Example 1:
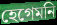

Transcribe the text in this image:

হেগেমনি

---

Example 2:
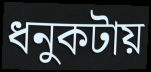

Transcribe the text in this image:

ধনুকটায়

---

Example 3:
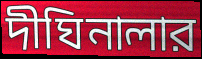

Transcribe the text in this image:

দীঘিনালার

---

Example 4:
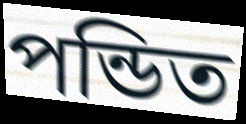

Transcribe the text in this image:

পন্ডিত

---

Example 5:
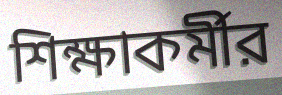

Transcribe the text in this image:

শিক্ষাকর্মীর